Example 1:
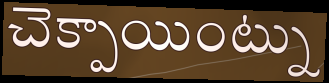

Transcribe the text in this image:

చెక్పాయింట్ను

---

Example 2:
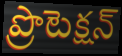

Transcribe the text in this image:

ప్రొటెక్షన్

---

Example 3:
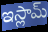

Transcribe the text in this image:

ఇస్లామ్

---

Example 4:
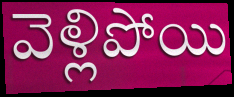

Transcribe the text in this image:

వెళ్లిపోయి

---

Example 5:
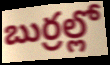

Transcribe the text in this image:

బుర్రల్లో